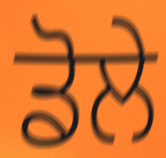
ਡੋਲੇ